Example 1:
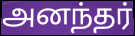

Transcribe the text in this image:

அனந்தர்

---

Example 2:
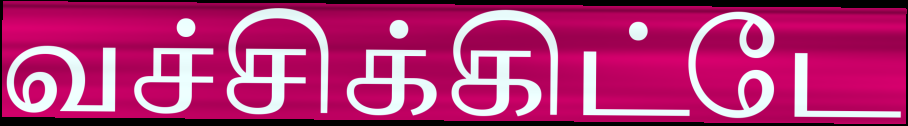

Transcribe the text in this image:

வச்சிக்கிட்டே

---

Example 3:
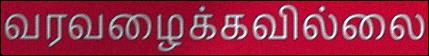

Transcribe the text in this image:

வரவழைக்கவில்லை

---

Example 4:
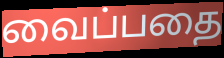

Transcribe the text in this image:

வைப்பதை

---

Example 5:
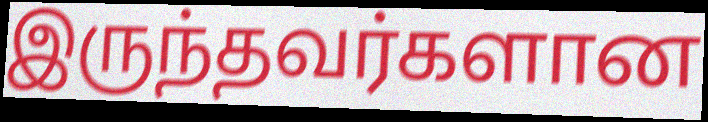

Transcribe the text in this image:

இருந்தவர்களான